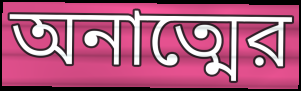
অনাত্মের